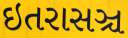
ઇતરાસઞ્ચ